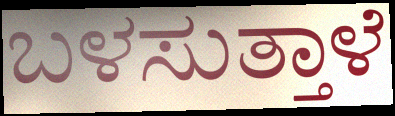
ಬಳಸುತ್ತಾಳೆ